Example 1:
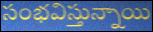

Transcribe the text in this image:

సంభవిస్తున్నాయి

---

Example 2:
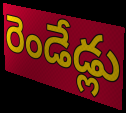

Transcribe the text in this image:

రెండేడ్లు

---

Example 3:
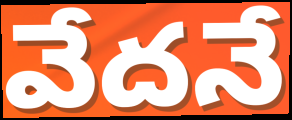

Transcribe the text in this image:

వేదనే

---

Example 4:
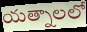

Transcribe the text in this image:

యత్నాలలో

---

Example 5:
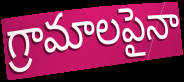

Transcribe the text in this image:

గ్రామాలపైనా